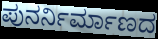
ಪುನರ್ನಿರ್ಮಾಣದ